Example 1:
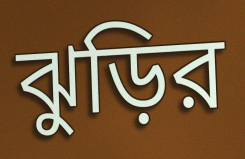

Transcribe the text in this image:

ঝুড়ির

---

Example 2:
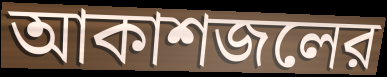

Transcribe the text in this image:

আকাশজলের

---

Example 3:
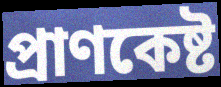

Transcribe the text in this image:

প্রাণকেষ্ট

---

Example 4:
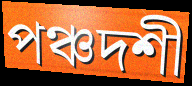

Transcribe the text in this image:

পঞ্চদশী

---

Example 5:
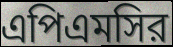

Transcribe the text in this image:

এপিএমসির